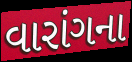
વારાંગના